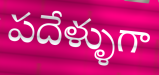
పదేళ్ళుగా